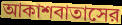
আকাশবাতাসের